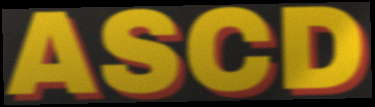
ASCD